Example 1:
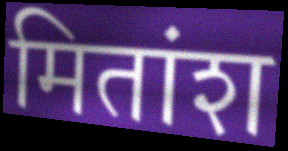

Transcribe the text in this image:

मितांश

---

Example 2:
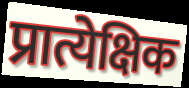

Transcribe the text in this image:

प्रात्येक्षिक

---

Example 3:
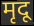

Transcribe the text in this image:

मृदू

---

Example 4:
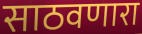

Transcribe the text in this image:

साठवणारा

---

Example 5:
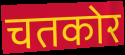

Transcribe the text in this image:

चतकोर